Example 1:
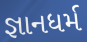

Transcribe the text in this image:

જ્ઞાનધર્મ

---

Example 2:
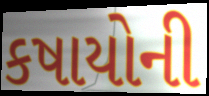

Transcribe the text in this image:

કષાયોની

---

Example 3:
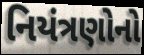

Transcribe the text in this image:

નિયંત્રણોનો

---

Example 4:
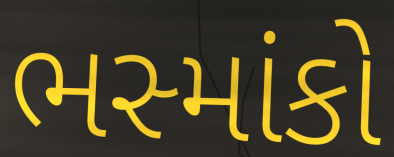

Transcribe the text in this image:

ભસ્માંકો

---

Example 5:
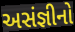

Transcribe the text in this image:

અસંજ્ઞીનો